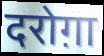
दरोग़ा